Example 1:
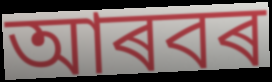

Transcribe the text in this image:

আৰবৰ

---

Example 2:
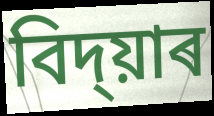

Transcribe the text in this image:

বিদ্য়াৰ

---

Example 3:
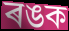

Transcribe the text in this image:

ৰঙক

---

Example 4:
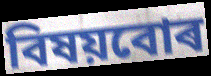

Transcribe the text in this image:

বিষয়বোৰ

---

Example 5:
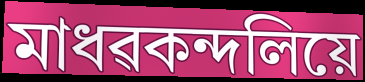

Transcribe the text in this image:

মাধৱকন্দলিয়ে